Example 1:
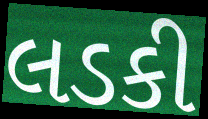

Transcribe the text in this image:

લડકી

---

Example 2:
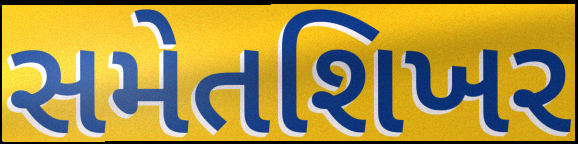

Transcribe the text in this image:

સમેતશિખર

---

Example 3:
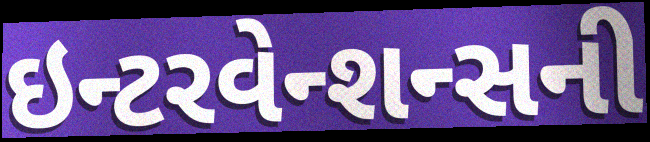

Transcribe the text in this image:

ઇન્ટરવેન્શન્સની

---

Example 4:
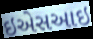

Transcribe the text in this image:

ઇએસઆઇ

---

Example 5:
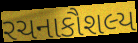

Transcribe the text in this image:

રચનાકૌશલ્ય